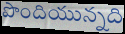
పొందియున్నది